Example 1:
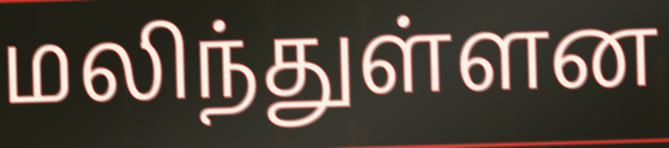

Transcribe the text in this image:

மலிந்துள்ளன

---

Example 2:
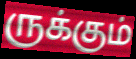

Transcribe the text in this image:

ருக்கும்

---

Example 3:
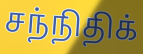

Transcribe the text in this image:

சந்நிதிக்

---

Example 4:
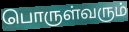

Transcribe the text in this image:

பொருள்வரும்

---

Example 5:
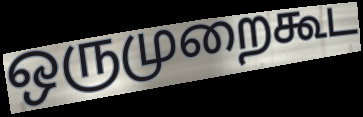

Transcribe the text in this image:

ஒருமுறைகூட